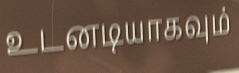
உடனடியாகவும்